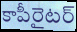
కాపీరైటర్